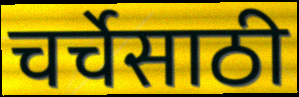
चर्चेसाठी